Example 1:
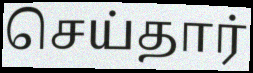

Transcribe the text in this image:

செய்தார்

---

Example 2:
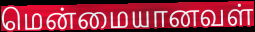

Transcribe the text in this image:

மென்மையானவள்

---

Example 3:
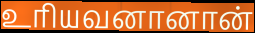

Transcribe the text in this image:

உரியவனானான்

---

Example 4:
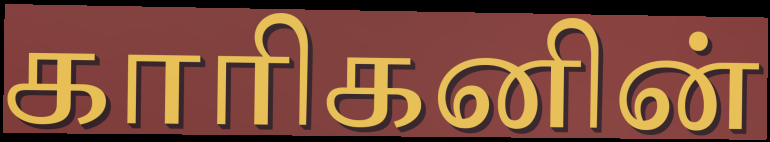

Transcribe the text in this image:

காரிகனின்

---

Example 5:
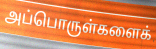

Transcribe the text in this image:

அப்பொருள்களைக்